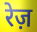
रेज़